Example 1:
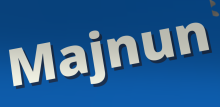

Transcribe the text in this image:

Majnun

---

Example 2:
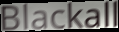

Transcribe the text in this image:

Blackall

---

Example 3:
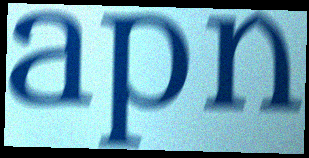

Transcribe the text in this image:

apn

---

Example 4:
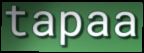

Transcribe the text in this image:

tapaa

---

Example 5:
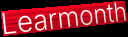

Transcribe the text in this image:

Learmonth